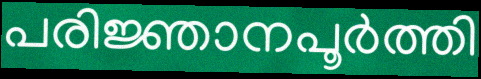
പരിജ്ഞാനപൂർത്തി